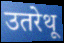
उतरेथू